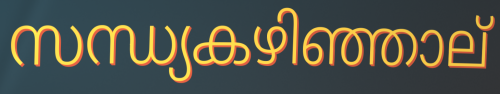
സന്ധ്യകഴിഞ്ഞാല്